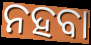
ନହବା